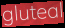
gluteal